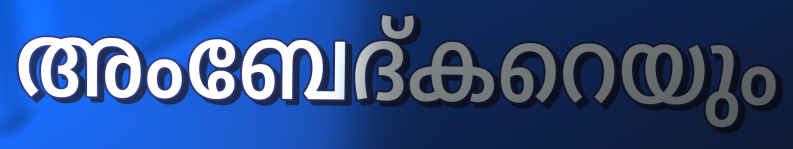
അംബേദ്കറെയും